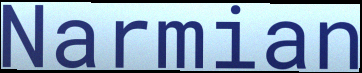
Narmian